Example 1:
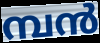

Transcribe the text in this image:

മ്പൻ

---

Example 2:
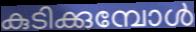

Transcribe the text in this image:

കുടിക്കുമ്പോൾ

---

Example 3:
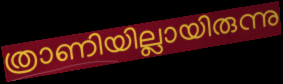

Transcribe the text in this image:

ത്രാണിയില്ലായിരുന്നു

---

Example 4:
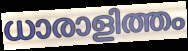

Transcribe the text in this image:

ധാരാളിത്തം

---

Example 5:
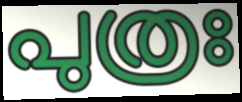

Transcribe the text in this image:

പുത്രഃ